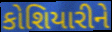
કોશિયારીને